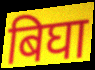
बिघा